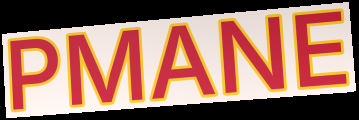
PMANE